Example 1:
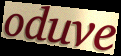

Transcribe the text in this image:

oduve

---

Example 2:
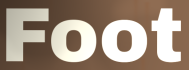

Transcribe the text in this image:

Foot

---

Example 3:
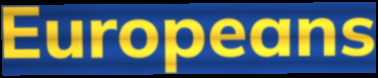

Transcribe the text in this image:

Europeans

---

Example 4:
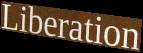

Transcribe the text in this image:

Liberation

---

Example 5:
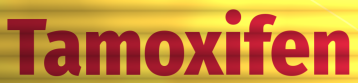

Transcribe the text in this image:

Tamoxifen